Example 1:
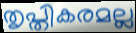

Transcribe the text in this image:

തൃപ്തികരമല്ല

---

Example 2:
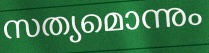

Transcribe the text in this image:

സത്യമൊന്നും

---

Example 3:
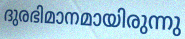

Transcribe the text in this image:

ദുരഭിമാനമായിരുന്നു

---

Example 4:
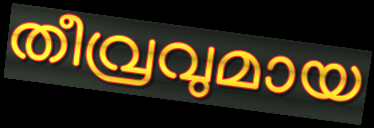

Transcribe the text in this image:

തീവ്രവുമായ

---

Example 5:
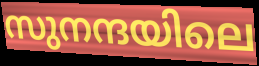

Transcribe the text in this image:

സുനന്ദയിലെ